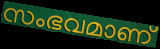
സംഭവമാണ്